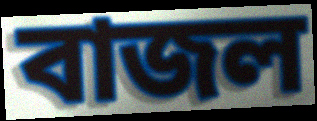
বাজল